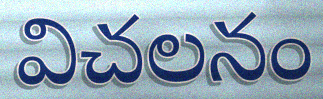
విచలనం